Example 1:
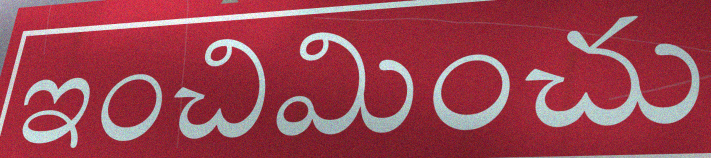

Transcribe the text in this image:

ఇంచిమించు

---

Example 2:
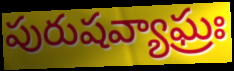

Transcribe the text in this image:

పురుషవ్యాఘ్రః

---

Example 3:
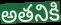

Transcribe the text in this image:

అతనికి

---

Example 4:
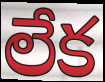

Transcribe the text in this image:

లేక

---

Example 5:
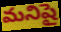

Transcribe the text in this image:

మనిషై